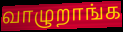
வாழுறாங்க